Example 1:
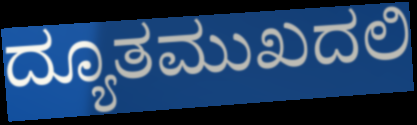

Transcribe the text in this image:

ದ್ಯೂತಮುಖದಲಿ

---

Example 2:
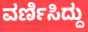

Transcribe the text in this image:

ವರ್ಣಿಸಿದ್ದು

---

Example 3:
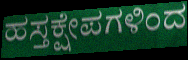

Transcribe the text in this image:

ಹಸ್ತಕ್ಷೇಪಗಳಿಂದ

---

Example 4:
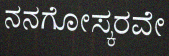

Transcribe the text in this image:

ನನಗೋಸ್ಕರವೇ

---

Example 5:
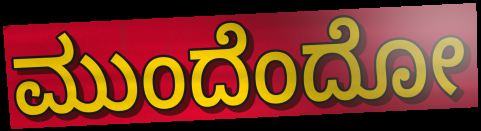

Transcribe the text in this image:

ಮುಂದೆಂದೋ